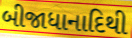
બીજાધાનાદિથી